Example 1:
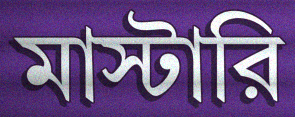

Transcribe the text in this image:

মাস্টারি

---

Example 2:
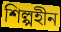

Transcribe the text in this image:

শিল্পহীন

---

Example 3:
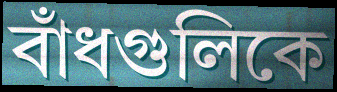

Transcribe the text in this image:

বাঁধগুলিকে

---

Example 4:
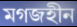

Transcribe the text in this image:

মগজহীন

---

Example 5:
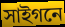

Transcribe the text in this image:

সাইগনে